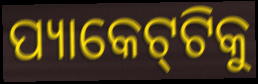
ପ୍ୟାକେଟ୍‌ଟିକୁ